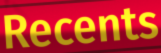
Recents